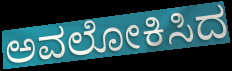
ಅವಲೋಕಿಸಿದ